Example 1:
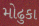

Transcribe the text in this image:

મોઢુકા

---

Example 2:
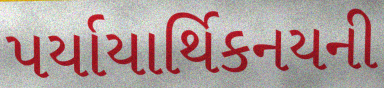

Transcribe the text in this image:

પર્યાયાર્થિકનયની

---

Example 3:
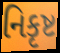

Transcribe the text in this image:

નિકૃષ્ટ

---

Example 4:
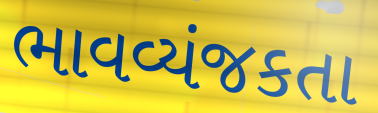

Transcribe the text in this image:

ભાવવ્યંજકતા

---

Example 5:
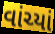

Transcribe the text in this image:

વાંચ્યાં